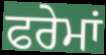
ਫਰੇਮਾਂ